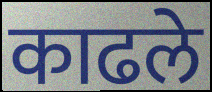
काढले